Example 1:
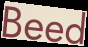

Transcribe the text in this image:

Beed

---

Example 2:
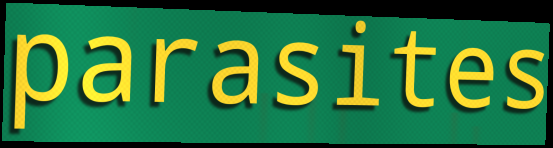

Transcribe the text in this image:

parasites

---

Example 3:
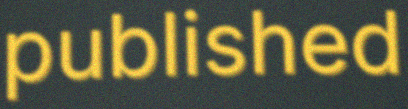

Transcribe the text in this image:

published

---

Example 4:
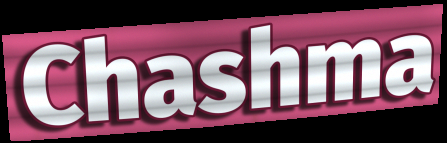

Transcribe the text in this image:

Chashma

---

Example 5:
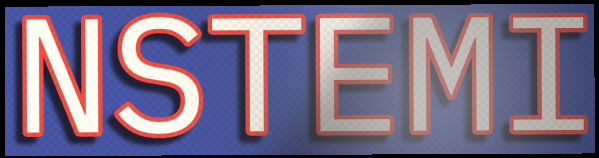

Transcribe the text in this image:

NSTEMI